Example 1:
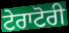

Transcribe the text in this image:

ਟੇਰਾਟੋਰੀ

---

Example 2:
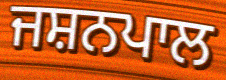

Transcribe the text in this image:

ਜਸ਼ਨਪਾਲ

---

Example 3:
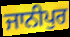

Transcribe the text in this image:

ਜਾਨੀਪੁਰ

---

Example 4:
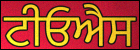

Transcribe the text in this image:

ਟੀਓਐਸ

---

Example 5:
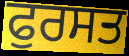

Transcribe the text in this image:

ਫੁਰਸਤ